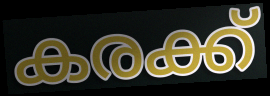
കരക്ക്